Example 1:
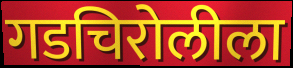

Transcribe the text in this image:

गडचिरोलीला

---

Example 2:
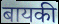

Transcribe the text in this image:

बायकी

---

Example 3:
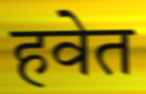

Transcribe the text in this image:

हवेत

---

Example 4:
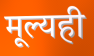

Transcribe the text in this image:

मूल्यही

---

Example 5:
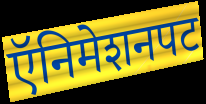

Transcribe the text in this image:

ऍनिमेशनपट